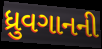
ધ્રુવગાનની